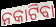
ନକାଟିବା